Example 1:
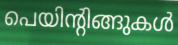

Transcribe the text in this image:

പെയിന്റിങ്ങുകൾ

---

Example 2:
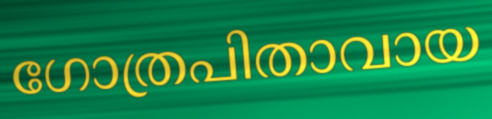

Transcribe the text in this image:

ഗോത്രപിതാവായ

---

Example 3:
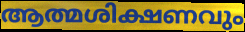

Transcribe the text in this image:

ആത്മശിക്ഷണവും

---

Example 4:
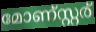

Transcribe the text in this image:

മോണ്സ്റ്റര്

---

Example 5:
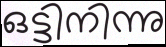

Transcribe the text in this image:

ഒട്ടിനിന്നു